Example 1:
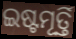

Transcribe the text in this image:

ଇଷ୍ଟମୂର୍ତ୍ତି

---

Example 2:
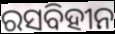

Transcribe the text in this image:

ରସବିହୀନ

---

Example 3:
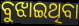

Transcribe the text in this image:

ବୁଝାଇଥିବା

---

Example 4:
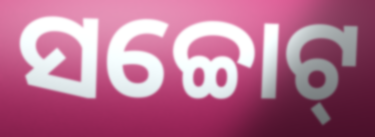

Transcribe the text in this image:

ସଚ୍ଚୋଟ୍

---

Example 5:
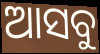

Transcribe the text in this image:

ଆସବୁ